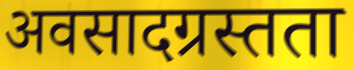
अवसादग्रस्तता